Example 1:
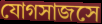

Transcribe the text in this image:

যোগসাজসে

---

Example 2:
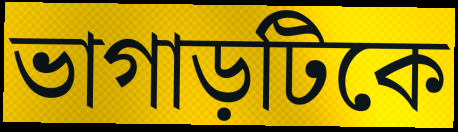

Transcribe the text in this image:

ভাগাড়টিকে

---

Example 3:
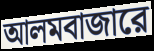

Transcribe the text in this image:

আলমবাজারে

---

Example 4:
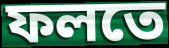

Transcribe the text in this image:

ফলতে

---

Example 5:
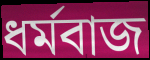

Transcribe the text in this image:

ধর্মবাজ